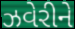
ઝવેરીને